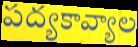
పద్యకావ్యాల